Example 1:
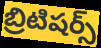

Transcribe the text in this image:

బ్రిటిషర్స్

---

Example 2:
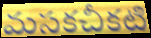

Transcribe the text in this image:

మసకచీకటి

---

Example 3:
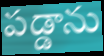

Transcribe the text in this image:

పడ్డాను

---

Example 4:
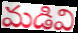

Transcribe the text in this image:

మడివి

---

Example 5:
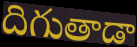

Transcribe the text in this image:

దిగుతాడా